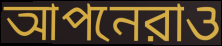
আপনেরাও